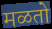
मळतो